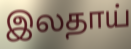
இலதாய்